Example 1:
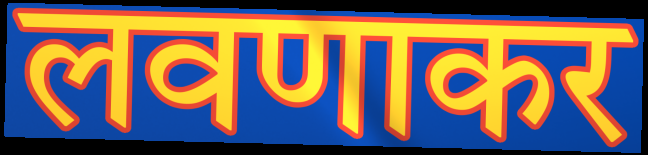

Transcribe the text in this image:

लवणाकर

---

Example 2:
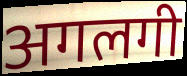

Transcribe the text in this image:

अगलगी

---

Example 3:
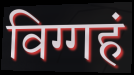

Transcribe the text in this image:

विग्गहं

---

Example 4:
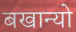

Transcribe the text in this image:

बखान्यो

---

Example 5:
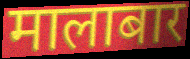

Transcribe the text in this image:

मालाबार